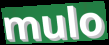
mulo